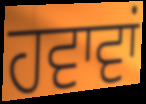
ਹਵਾਵਾਂ